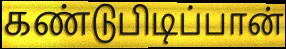
கண்டுபிடிப்பான்